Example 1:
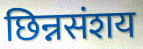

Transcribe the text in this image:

छिन्नसंशय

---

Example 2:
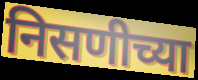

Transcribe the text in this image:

निसणीच्या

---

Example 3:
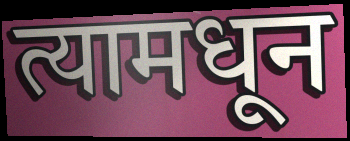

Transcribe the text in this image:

त्यामधून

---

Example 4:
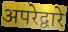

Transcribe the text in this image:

अपरेद्वारे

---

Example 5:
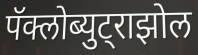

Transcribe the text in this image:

पॅक्लोब्युट्राझोल